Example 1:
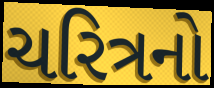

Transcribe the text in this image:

ચરિત્રનો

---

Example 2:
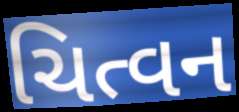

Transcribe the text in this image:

ચિત્વન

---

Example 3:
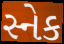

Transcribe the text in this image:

સ્નેક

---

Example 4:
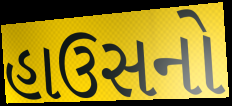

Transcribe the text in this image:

હાઉસનો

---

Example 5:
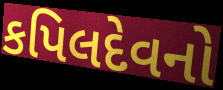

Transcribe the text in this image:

કપિલદેવનો